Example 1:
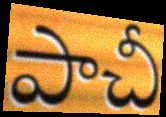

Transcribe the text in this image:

పాచీ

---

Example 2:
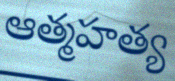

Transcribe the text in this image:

ఆత్మహత్య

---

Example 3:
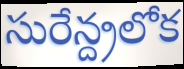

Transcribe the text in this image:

సురేన్ద్రలోక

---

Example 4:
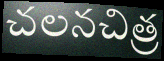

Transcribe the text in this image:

చలనచిత్ర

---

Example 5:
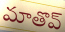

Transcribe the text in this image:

మాతొవ్